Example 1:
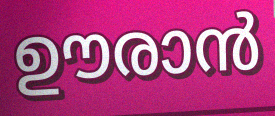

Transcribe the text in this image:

ഊരാൻ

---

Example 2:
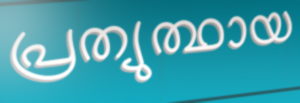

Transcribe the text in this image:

പ്രത്യുത്ഥായ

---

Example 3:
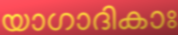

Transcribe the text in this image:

യാഗാദികാഃ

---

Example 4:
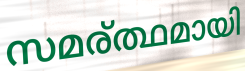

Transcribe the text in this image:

സമര്ത്ഥമായി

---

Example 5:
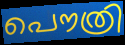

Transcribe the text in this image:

പൌത്രി